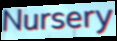
Nursery